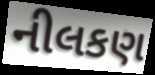
નીલકણ